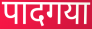
पादगया